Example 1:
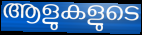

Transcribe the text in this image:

ആളുകളുടെ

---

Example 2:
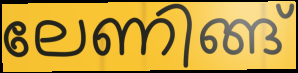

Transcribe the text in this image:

ലേണിങ്ങ്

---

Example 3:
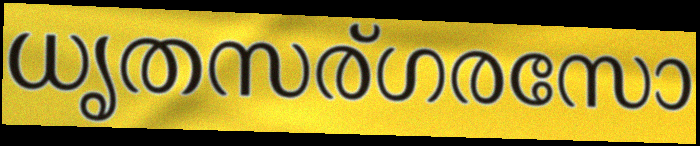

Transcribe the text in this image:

ധൃതസര്ഗരസോ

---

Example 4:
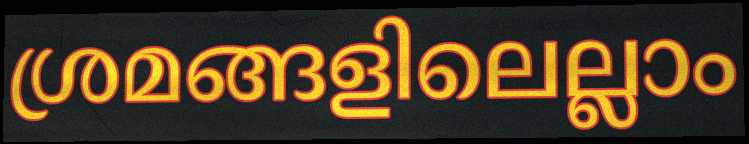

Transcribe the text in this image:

ശ്രമങ്ങളിലെല്ലാം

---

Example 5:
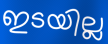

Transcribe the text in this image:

ഇടയില്ല